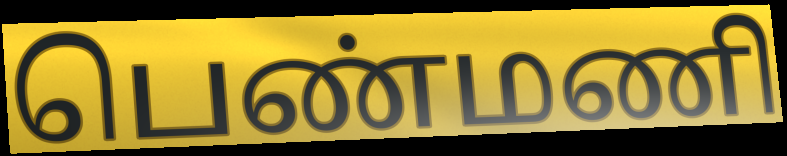
பெண்மணி